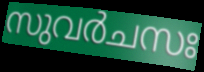
സുവർചസഃ